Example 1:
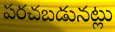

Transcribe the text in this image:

పరచబడునట్లు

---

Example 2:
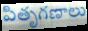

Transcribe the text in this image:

పితృగణాలు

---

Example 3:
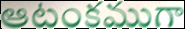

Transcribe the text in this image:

ఆటంకముగా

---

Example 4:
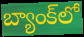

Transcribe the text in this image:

బ్యాంక్‌లో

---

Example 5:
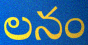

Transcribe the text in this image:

లనం